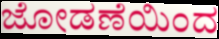
ಜೋಡಣೆಯಿಂದ